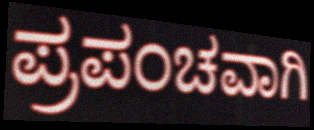
ಪ್ರಪಂಚವಾಗಿ